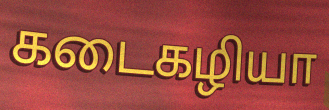
கடைகழியா